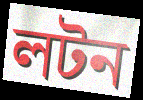
লটন